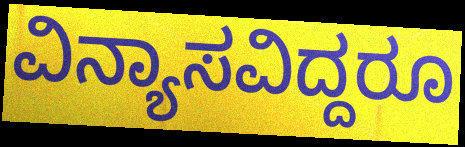
ವಿನ್ಯಾಸವಿದ್ದರೂ